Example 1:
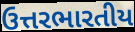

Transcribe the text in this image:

ઉત્તરભારતીય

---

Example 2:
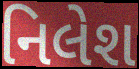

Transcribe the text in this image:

નિલેશ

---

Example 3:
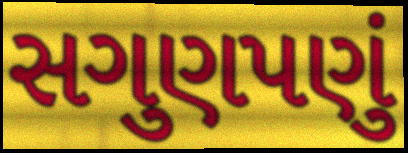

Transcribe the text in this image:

સગુણપણું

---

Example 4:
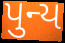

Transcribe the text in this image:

પુન્ય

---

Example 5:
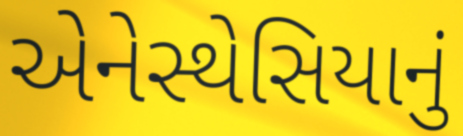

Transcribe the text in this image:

એનેસ્થેસિયાનું